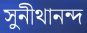
সুনীথানন্দ